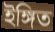
ইঙ্গিত